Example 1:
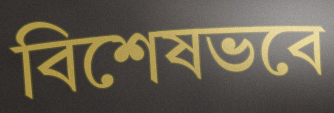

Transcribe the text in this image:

বিশেষভবে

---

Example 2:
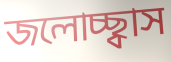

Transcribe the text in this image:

জলোচ্ছ্বাস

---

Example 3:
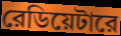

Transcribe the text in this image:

রেডিয়েটারে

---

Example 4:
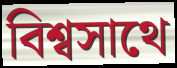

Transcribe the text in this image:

বিশ্বসাথে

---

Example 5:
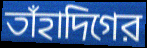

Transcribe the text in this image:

তাঁহাদিগের